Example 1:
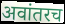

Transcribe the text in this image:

अवांतरच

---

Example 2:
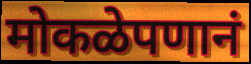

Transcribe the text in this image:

मोकळेपणानं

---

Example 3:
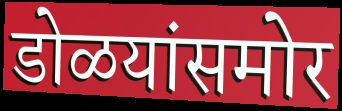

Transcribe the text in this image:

डोळयांसमोर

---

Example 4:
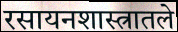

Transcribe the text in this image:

रसायनशास्त्रातले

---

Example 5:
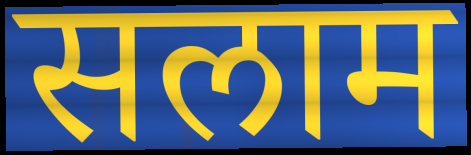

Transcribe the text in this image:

सलाम